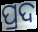
ପ୍ରଦ